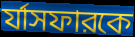
র্যাসফারকে